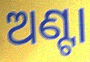
ଅଣ୍ଟା